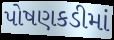
પોષણકડીમાં